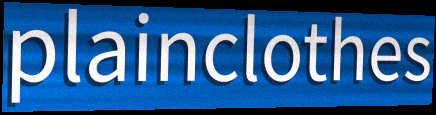
plainclothes